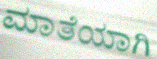
ಮಾತೆಯಾಗಿ